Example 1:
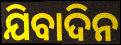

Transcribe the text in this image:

ଯିବାଦିନ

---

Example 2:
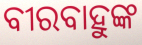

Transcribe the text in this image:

ବୀରବାହୁଙ୍କ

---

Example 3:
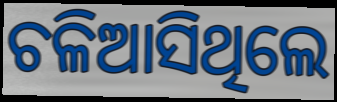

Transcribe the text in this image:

ଚଳିଆସିଥିଲେ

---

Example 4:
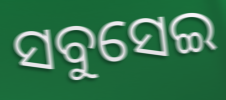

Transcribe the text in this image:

ସବୁସେଇ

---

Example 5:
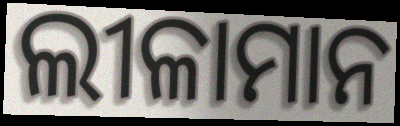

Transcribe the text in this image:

ଲୀଳାମାନ